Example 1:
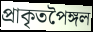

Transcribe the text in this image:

প্ৰাকৃতপৈঙ্গল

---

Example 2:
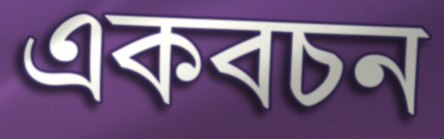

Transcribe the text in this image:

একবচন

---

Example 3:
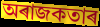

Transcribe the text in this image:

অৰাজকতাৰ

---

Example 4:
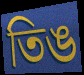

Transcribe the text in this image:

তিঙ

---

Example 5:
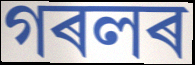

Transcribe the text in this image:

গৰলৰ